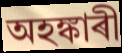
অহঙ্কাৰী